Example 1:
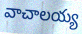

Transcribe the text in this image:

వాచాలయ్య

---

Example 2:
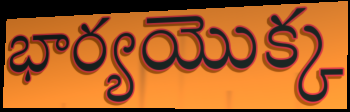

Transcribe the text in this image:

భార్యయొక్క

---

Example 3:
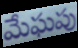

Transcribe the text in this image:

మేఘపు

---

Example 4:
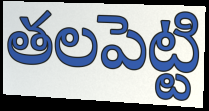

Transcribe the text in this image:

తలపెట్టి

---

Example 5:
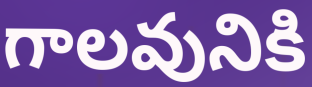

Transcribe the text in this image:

గాలవునికి